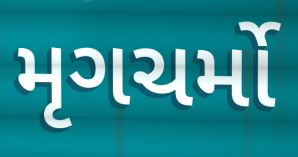
મૃગચર્મો